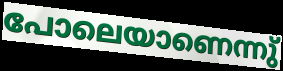
പോലെയാണെന്നു്